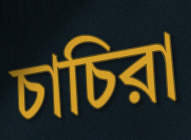
চাচিরা